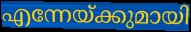
എന്നേയ്ക്കുമായി